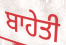
ਬਾਹੇਤੀ